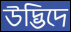
উদ্ভিদে